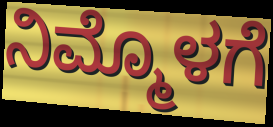
ನಿಮ್ಮೊಳಗೆ